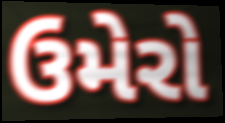
ઉમેરો